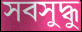
সবসুদ্ধু